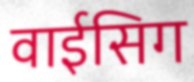
वाईसिग